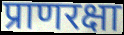
प्राणरक्षा